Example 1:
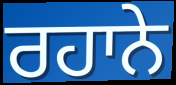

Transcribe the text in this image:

ਰਹਾਨੇ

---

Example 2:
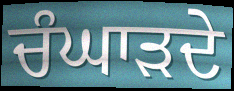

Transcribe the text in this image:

ਚੰਘਾੜਦੇ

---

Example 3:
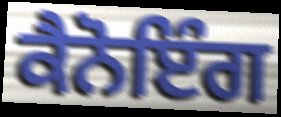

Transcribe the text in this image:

ਕੈਨੋਇੰਗ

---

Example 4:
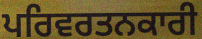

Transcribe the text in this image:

ਪਰਿਵਰਤਨਕਾਰੀ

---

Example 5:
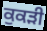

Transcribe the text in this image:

ਕੁਕੜੀ